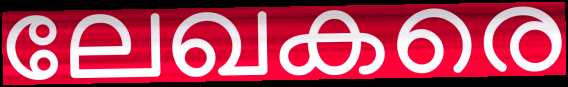
ലേഖകരെ